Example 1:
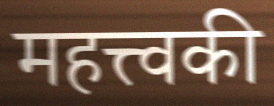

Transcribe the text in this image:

महत्त्वकी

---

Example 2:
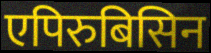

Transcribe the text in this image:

एपिरुबिसिन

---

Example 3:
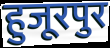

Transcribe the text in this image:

हुजूरपुर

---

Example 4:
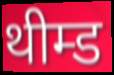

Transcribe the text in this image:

थीम्ड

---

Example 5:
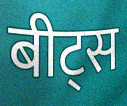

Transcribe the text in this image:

बीट्स